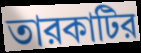
তারকাটির